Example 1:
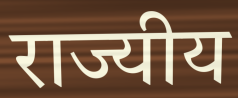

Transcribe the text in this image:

राज्‍यीय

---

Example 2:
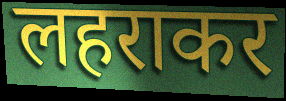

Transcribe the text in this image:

लहराकर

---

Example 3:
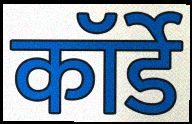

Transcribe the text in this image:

कॉर्डे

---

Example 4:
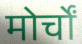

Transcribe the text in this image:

मोर्चों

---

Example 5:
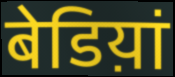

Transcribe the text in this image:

बेडिय़ां